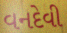
વનદેવી